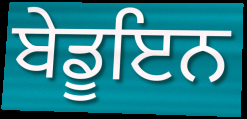
ਬੇਡੂਇਨ